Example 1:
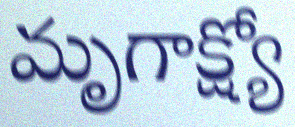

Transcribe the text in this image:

మృగాక్ష్యో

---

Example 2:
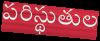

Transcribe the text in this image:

పరిస్థుతుల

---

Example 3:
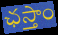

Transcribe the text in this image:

ఛస్తాం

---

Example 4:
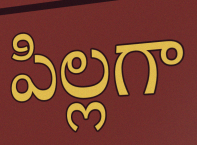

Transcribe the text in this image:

పిల్లగా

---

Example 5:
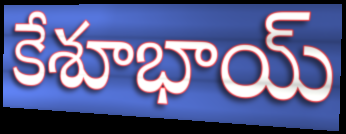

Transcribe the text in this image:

కేశూభాయ్